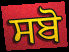
ਸਬੋ